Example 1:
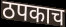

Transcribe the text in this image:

ठपकाच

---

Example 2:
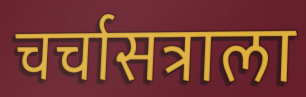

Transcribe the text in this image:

चर्चासत्राला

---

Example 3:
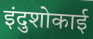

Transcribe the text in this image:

इंदुशोकाई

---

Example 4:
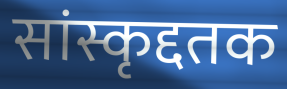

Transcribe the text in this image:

सांस्कृद्दतक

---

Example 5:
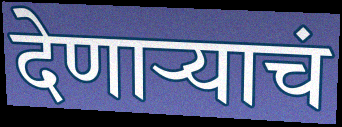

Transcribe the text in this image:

देणाऱ्याचं